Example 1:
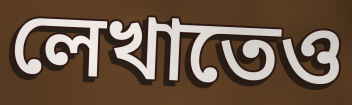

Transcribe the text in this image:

লেখাতেও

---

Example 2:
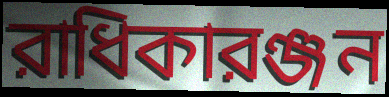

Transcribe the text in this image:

রাধিকারঞ্জন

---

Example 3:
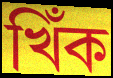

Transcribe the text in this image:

খিঁক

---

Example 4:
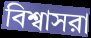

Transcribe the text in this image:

বিশ্বাসরা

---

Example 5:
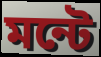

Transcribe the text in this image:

মন্টে